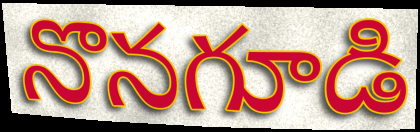
నొనగూడి